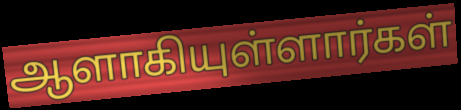
ஆளாகியுள்ளார்கள்